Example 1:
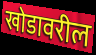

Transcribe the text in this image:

खोडावरील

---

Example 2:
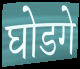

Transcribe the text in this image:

घोडगे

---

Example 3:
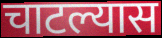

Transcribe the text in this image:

चाटल्यास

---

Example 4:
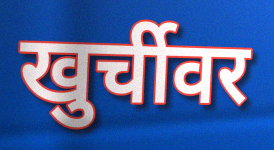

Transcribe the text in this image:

खुर्चीवर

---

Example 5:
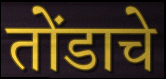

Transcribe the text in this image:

तोंडाचे